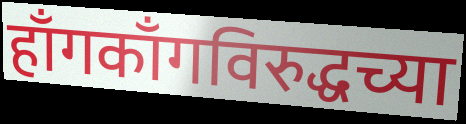
हाँगकाँगविरुद्धच्या